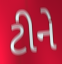
ટીને